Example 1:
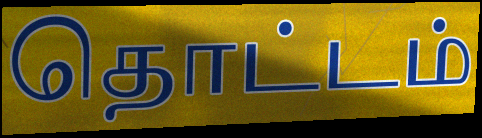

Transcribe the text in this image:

தொட்டம்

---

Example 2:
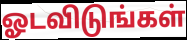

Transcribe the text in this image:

ஓடவிடுங்கள்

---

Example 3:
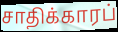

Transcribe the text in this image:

சாதிக்காரப்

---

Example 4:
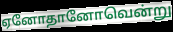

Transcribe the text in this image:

ஏனோதானோவென்று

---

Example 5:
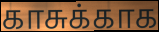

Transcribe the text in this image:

காசுக்காக